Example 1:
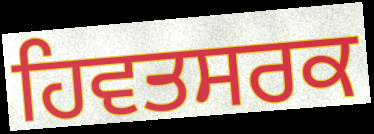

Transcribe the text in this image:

ਹਿਵਤਸਰਕ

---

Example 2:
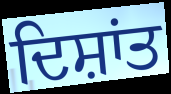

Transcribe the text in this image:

ਦਿਸ਼ਾਂਤ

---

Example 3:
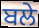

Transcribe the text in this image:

ਬਲੇ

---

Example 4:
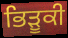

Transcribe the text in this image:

ਭਿੜੂਕੀ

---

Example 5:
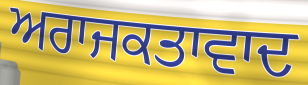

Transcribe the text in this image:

ਅਰਾਜਕਤਾਵਾਦ